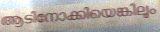
ആടിനോക്കിയെങ്കിലും